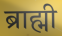
ब्राह्मी